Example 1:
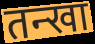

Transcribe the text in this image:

तन्खा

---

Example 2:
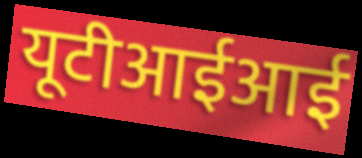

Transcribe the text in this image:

यूटीआईआई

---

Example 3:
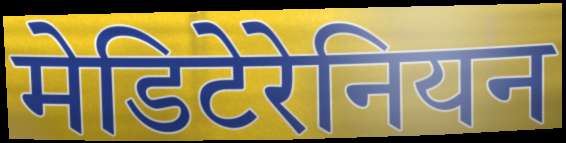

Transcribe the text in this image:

मेडिटेरेनियन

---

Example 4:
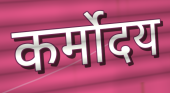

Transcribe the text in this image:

कर्मोदय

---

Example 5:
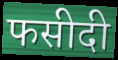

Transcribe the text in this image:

फसीदी